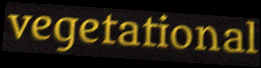
vegetational